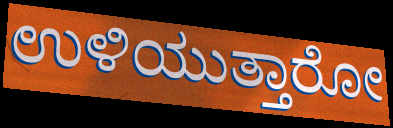
ಉಳಿಯುತ್ತಾರೋ